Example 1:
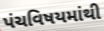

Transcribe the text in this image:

પંચવિષયમાંથી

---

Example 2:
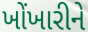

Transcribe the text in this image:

ખોંખારીને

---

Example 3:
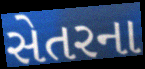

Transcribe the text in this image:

સેતરના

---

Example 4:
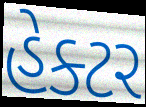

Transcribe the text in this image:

હેક્ટર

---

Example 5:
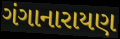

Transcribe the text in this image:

ગંગાનારાયણ